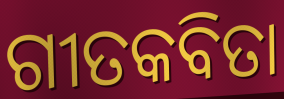
ଗୀତକବିତା